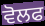
ਵੋਲਫ